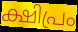
ക്ഷിപ്രം